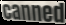
canned